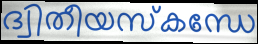
ദ്വിതീയസ്കന്ധേ